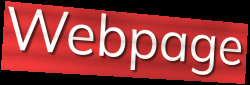
Webpage